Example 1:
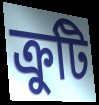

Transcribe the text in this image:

ক্রুটি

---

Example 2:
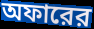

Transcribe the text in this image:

অফারের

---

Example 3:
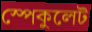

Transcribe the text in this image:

স্পেকুলেট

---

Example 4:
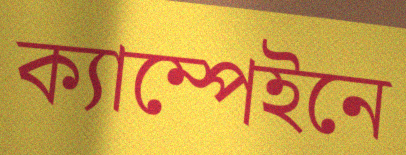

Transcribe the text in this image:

ক্যাম্পেইনে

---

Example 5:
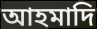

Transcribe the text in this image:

আহমাদি